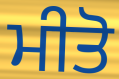
ਮੀਤੋ